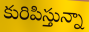
కురిపిస్తున్నా